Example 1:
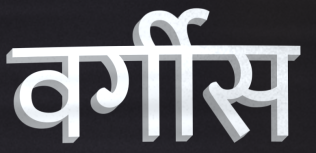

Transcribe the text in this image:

वर्गीस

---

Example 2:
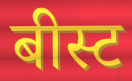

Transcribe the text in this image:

बीस्ट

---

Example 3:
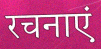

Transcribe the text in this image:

रचनाएं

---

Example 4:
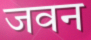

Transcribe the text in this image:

जवन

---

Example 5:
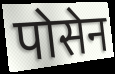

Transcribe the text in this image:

पोसेन